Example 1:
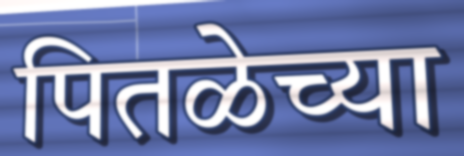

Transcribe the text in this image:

पितळेच्या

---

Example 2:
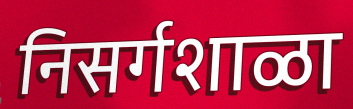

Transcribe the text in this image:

निसर्गशाळा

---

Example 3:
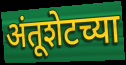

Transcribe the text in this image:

अंतूशेटच्या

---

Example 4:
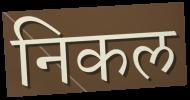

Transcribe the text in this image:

निकल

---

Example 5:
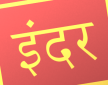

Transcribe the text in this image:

इंदर